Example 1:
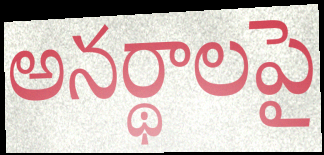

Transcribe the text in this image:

అనర్థాలపై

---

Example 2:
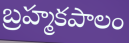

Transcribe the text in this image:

బ్రహ్మకపాలం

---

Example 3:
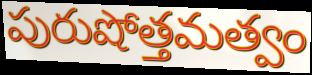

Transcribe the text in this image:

పురుషోత్తమత్వం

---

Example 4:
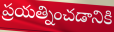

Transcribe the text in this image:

ప్రయత్నించడానికి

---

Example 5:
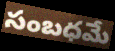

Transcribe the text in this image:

సంబధమే